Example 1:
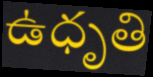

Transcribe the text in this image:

ఉధృతి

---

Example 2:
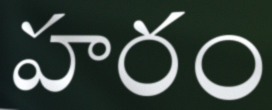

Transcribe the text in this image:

హరం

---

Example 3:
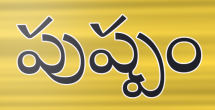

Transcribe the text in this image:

పుష్పం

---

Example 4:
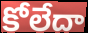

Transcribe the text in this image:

కోలేదా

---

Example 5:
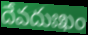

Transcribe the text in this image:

దేవదుఃఖం